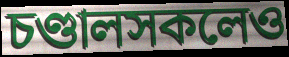
চণ্ডালসকলেও